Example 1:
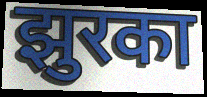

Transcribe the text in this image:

झुरका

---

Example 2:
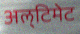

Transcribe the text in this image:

अल्टिमेट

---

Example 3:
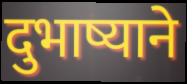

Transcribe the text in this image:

दुभाष्याने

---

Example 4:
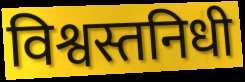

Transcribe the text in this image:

विश्वस्तनिधी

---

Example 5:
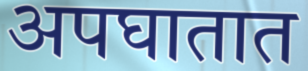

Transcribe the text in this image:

अपघातात